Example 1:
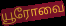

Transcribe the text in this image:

யூரோவை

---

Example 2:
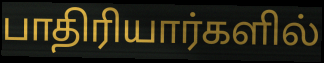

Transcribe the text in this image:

பாதிரியார்களில்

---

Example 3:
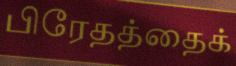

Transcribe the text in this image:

பிரேதத்தைக்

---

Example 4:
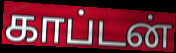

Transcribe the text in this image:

காப்டன்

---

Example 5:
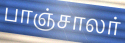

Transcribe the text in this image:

பாஞ்சாலர்